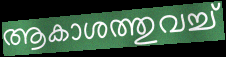
ആകാശത്തുവച്ച്